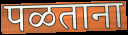
पळताना